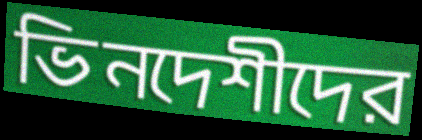
ভিনদেশীদের